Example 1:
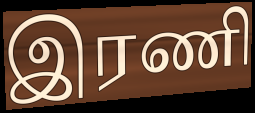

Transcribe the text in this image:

இரணி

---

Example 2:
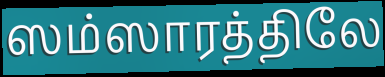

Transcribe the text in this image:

ஸம்ஸாரத்திலே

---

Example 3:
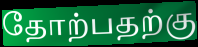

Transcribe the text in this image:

தோற்பதற்கு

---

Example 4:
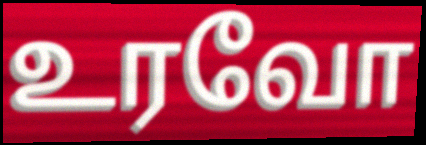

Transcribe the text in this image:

உரவோ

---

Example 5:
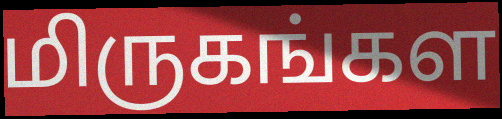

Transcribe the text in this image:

மிருகங்கள